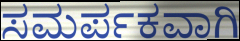
ಸಮರ್ಪಕವಾಗಿ